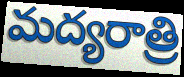
మద్యరాత్రి